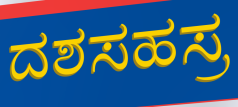
ದಶಸಹಸ್ರ